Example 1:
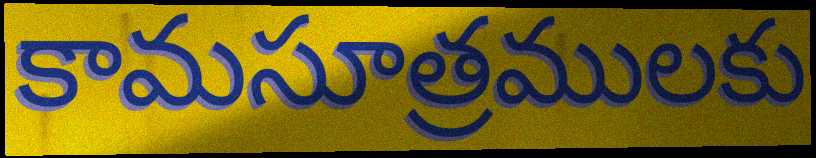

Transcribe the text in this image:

కామసూత్రములకు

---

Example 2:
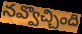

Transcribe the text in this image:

నవ్వొచ్చింది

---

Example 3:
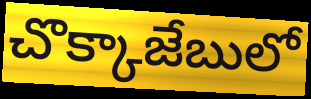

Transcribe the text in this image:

చొక్కాజేబులో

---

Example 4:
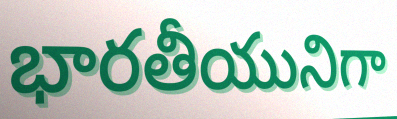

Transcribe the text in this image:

భారతీయునిగా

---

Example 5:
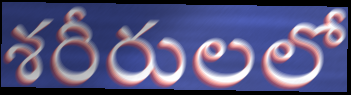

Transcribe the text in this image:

శరీరులలో